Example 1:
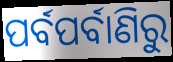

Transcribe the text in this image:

ପର୍ବପର୍ବାଣିରୁ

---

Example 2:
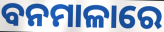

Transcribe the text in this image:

ବନମାଳାରେ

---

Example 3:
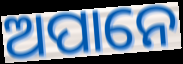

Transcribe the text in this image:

ଅପାନେ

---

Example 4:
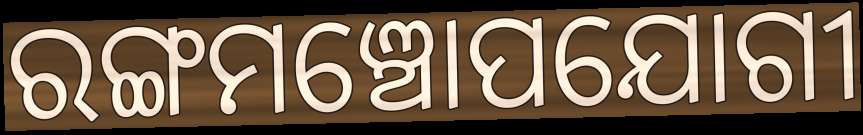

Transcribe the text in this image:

ରଙ୍ଗମଞ୍ଚୋପଯୋଗୀ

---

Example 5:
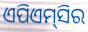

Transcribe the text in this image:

ଏପିଏମ୍‌ସିର